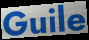
Guile